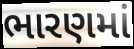
ભારણમાં